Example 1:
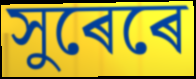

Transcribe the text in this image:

সুৰেৰে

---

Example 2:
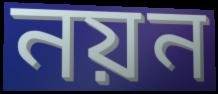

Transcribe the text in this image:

নয়ন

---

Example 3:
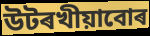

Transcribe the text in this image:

উটৰখীয়াবোৰ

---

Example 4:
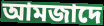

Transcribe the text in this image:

আমজাদে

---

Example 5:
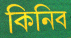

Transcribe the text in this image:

কিনিব